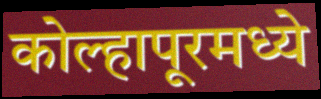
कोल्हापूरमध्ये